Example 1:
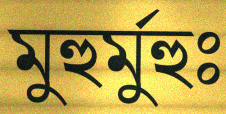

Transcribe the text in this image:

মুহুর্মুহুঃ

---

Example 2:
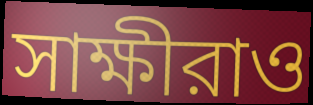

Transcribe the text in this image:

সাক্ষীরাও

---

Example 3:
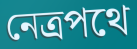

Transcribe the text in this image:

নেত্রপথে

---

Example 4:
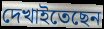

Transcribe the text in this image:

দেখাইতেছেন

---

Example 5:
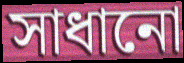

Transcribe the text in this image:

সাধানো